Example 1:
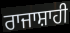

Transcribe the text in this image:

ਰਾਜਾਸ਼ਾਹੀ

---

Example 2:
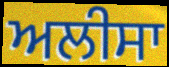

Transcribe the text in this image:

ਅਲੀਸਾ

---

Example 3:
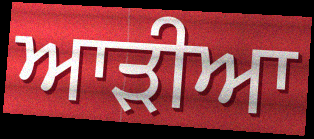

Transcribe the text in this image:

ਆੜੀਆ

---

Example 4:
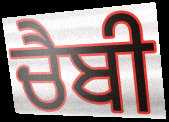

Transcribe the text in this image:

ਚੈਬੀ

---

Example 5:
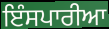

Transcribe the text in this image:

ਇੰਸਪਾਰੀਆ